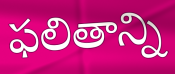
ఫలితాన్ని